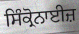
ਸਿੰਕ੍ਰੋਨਾਈਜ਼